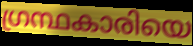
ഗ്രന്ഥകാരിയെ